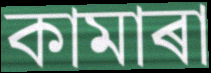
কামাৰা